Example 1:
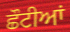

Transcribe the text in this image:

ਛੌਟੀਆਂ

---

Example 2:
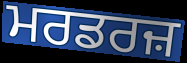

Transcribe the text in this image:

ਮਰਡਰਜ਼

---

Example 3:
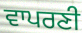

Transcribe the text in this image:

ਵਾਪਰਣੀ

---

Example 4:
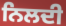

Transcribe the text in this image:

ਨਿਲਦੀ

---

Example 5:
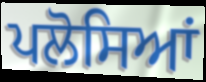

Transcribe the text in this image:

ਪਲੋਸਿਆਂ